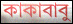
কাকাবাবু